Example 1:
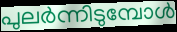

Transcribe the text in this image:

പുലർന്നിടുമ്പോൾ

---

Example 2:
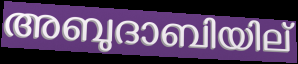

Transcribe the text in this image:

അബുദാബിയില്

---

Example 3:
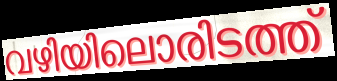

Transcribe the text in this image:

വഴിയിലൊരിടത്ത്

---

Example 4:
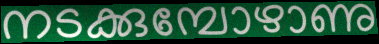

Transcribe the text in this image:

നടക്കുമ്പോഴാണു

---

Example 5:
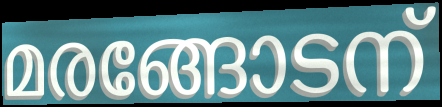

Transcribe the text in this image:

മരങ്ങോടന്